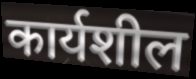
कार्यशील